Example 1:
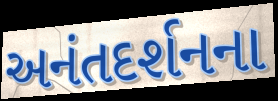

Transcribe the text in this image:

અનંતદર્શનના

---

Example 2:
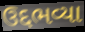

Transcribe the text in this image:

ઉદ્દભવ્યા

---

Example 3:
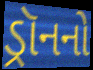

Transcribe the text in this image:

ડ્રૉનનો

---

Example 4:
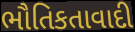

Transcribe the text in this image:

ભૌતિકતાવાદી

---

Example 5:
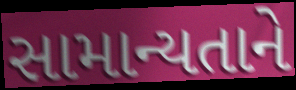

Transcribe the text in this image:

સામાન્યતાને